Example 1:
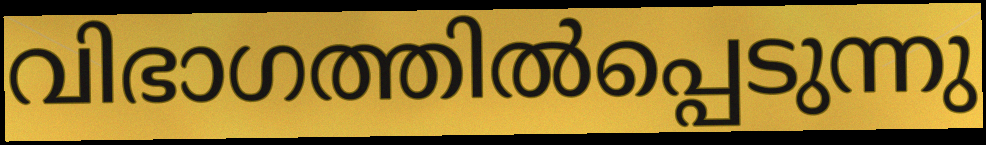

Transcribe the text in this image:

വിഭാഗത്തിൽപ്പെടുന്നു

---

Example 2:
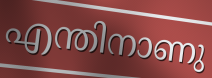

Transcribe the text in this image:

എന്തിനാണു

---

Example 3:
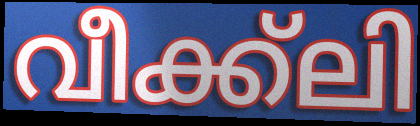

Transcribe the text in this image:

വീക്ക്ലി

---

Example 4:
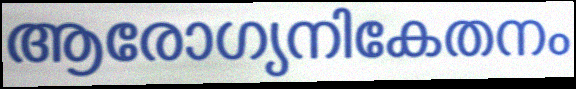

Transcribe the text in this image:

ആരോഗ്യനികേതനം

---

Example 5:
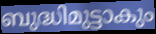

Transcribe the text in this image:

ബുദ്ധിമുട്ടാകും